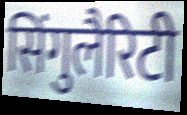
सिंगुलैरिटी